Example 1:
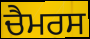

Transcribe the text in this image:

ਚੈਮਰਸ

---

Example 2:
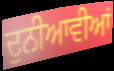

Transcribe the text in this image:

ਦੁਨੀਆਵੀਆਂ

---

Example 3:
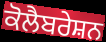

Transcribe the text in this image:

ਕੋਲੈਬਰੇਸ਼ਨ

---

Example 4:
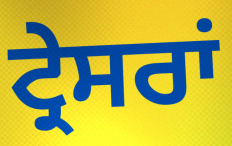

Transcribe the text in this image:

ਟ੍ਰੇਸਰਾਂ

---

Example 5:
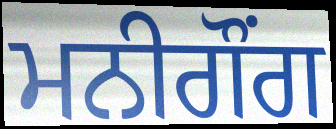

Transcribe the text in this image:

ਮਨੀਗੌਂਗ